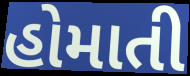
હોમાતી